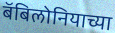
बॅबिलोनियाच्या